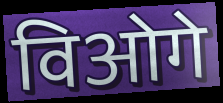
विओगे